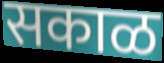
सकाळ